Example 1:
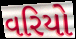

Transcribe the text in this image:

વરિયો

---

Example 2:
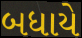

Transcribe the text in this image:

બધાયે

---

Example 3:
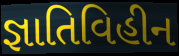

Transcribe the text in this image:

જ્ઞાતિવિહીન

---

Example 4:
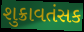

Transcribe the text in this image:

શુક્રાવતંસક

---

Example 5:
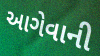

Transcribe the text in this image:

આગેવાની